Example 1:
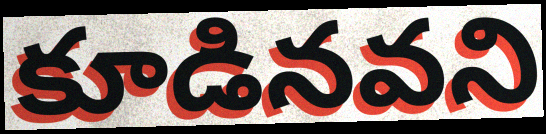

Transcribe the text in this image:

కూడినవని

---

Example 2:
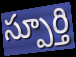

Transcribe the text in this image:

స్పూర్తి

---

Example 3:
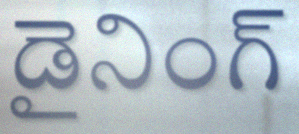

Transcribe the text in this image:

డైనింగ్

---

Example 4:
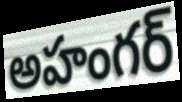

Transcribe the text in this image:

అహంగర్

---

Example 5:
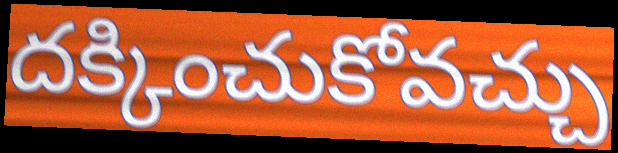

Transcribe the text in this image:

దక్కించుకోవచ్చు